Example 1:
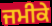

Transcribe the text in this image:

ਜਮੀਕੇ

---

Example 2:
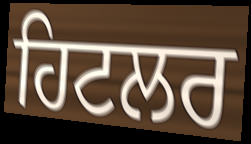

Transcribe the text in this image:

ਹਿਟਲਰ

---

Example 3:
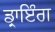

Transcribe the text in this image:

ਡ੍ਰਾਇੰਗ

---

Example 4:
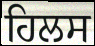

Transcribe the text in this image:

ਹਿਲਸ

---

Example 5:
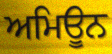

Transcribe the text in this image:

ਅਮਿਊਨ